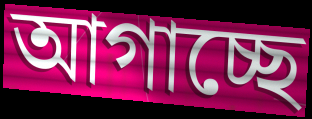
আগাচ্ছে